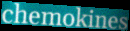
chemokines